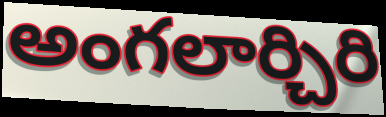
అంగలార్చిరి